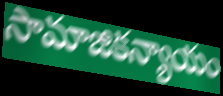
సామాజికన్యాయం